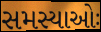
સમસ્યાઓઃ